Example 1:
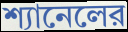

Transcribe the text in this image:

শ্যানেলের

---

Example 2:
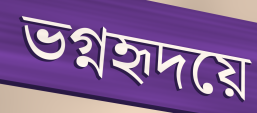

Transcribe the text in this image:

ভগ্নহৃদয়ে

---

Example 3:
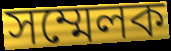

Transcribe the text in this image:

সম্মেলক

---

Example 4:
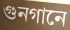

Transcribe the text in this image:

গুনগানে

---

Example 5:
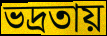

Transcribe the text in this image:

ভদ্রতায়